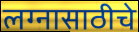
लग्नासाठीचे